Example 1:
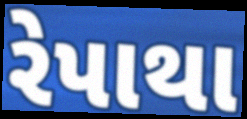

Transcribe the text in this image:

રેપાથા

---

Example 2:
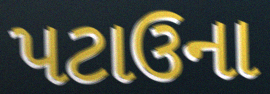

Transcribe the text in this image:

પટાઉના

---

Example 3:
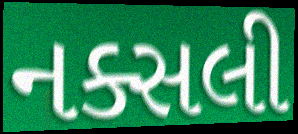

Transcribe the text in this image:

નક્સલી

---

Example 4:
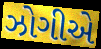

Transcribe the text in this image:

ઝોગીએ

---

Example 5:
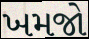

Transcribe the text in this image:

ખમજો